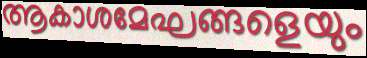
ആകാശമേഘങ്ങളെയും